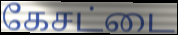
கேசட்டை